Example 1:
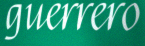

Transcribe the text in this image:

guerrero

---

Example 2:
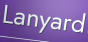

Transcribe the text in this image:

Lanyard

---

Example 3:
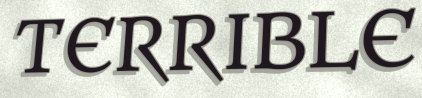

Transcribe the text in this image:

TERRIBLE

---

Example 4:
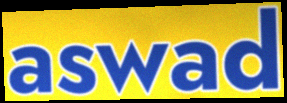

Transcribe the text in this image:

aswad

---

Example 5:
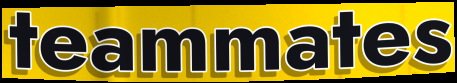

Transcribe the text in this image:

teammates